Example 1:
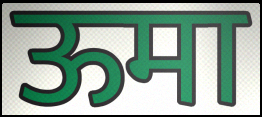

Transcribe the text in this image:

ऊमा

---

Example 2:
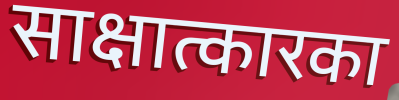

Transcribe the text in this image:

साक्षात्कारका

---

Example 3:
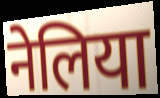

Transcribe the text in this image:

नेलिया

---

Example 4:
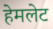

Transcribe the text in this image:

हेमलेट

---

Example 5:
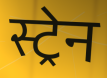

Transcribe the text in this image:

स्ट्रेन